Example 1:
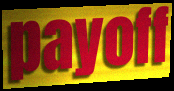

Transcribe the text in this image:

payoff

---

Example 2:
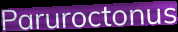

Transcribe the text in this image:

Paruroctonus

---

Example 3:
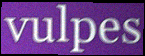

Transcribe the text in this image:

vulpes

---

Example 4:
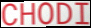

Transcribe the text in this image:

CHODI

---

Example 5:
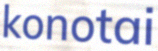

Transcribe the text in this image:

konotai